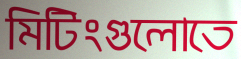
মিটিংগুলোতে